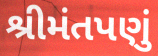
શ્રીમંતપણું